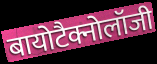
बायोटैक्नोलॉजी